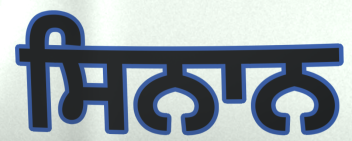
ਸਿਨਾਨ